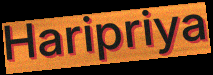
Haripriya